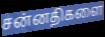
சன்னதிகளை